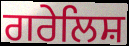
ਗਰੇਲਿਸ਼